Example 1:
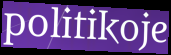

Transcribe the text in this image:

politikoje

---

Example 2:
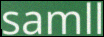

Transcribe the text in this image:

samll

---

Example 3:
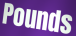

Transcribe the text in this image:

Pounds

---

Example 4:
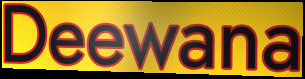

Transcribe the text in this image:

Deewana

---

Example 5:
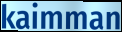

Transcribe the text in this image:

kaimman